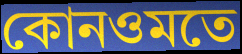
কোনওমতে